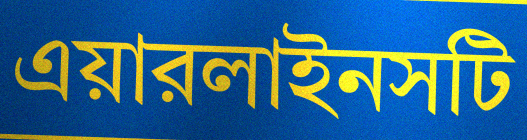
এয়ারলাইনসটি